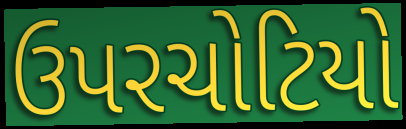
ઉપરચોટિયો